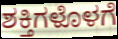
ಶಕ್ತಿಗಳೊಳಗೆ